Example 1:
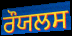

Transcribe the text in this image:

ਰੌਯਲਸ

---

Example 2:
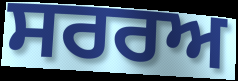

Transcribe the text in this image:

ਸਰਰਅ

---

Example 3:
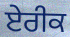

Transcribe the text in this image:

ਏਰੀਕ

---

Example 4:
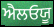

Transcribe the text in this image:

ਐਲਓਯੂ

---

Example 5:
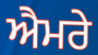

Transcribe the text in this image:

ਐਮਰੇ